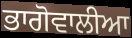
ਭਾਗੋਵਾਲੀਆ